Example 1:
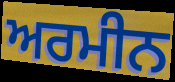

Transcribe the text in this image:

ਅਰਮੀਨ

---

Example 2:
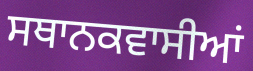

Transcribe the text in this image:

ਸਥਾਨਕਵਾਸੀਆਂ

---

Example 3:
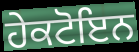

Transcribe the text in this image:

ਹੇਕਟੋਇਨ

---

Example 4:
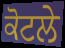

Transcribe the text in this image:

ਕੋਟਲੇ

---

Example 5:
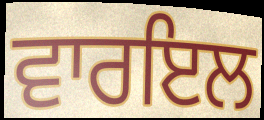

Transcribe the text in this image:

ਵਾਰਇਲ